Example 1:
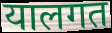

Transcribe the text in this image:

यालगत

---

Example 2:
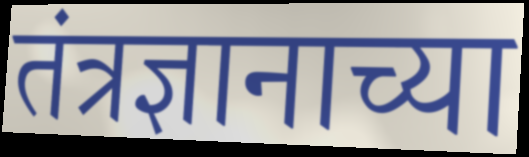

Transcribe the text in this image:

तंत्रज्ञानाच्या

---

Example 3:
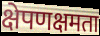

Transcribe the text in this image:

क्षेपणक्षमता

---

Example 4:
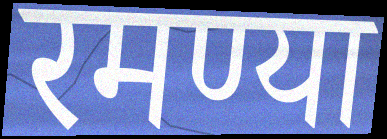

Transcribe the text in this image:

रमण्या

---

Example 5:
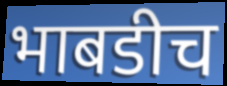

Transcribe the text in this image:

भाबडीच